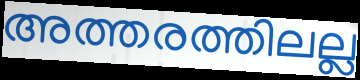
അത്തരത്തിലല്ല